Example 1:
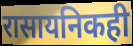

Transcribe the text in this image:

रासायनिकही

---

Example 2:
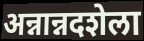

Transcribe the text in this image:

अन्नान्नदशेला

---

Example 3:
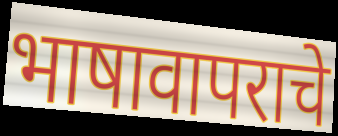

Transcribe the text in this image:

भाषावापराचे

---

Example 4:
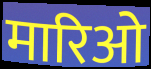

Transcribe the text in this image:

मारिओ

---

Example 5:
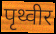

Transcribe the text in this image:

पृथ्वीर